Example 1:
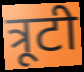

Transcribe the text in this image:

त्रूटी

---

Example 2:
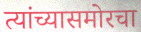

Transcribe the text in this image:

त्यांच्यासमोरचा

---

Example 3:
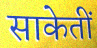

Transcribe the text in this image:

साकेतीं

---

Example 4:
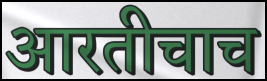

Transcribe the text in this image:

आरतीचाच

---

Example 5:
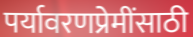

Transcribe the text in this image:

पर्यावरणप्रेमींसाठी